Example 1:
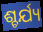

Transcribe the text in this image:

ଶ୍ଚର୍ଯ୍ୟ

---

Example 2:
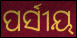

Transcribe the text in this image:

ପର୍ସୀୟ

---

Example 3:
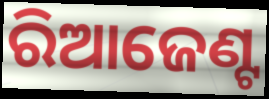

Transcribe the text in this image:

ରିଆଜେଣ୍ଟ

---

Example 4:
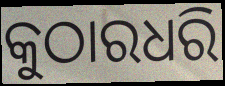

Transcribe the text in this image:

କୁଠାରଧରି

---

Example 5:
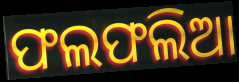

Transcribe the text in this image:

ଫଲଫଲିଆ